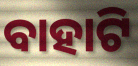
ବାହାଟି